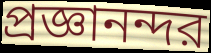
প্রজ্ঞানন্দর